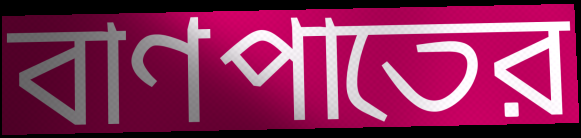
বাণপাতের